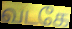
வடகே